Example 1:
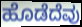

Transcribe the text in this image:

ಹೊಡೆದೆವು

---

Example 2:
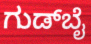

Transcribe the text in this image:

ಗುಡ್‌ಬೈ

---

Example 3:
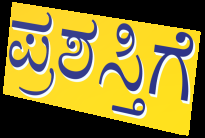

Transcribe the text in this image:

ಪ್ರಶಸ್ತಿಗೆ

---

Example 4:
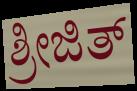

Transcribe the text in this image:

ಶ್ರೀಜಿತ್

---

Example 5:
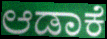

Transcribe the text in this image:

ಆಡಾಕೆ